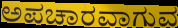
ಅಪಚಾರವಾಗುವ